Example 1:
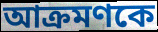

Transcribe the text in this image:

আক্রমণকে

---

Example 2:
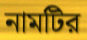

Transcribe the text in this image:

নামটির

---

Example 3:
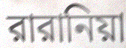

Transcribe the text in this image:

রারানিয়া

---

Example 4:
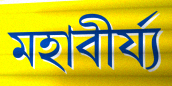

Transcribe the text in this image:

মহাবীর্য্য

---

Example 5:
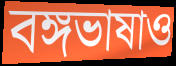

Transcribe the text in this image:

বঙ্গভাষাও